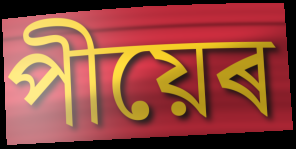
পীয়েৰ